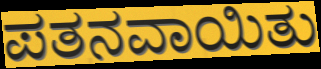
ಪತನವಾಯಿತು